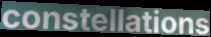
constellations